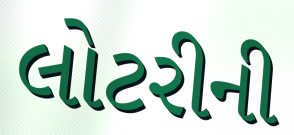
લોટરીની